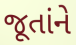
જૂતાંને